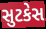
સુટકેસ